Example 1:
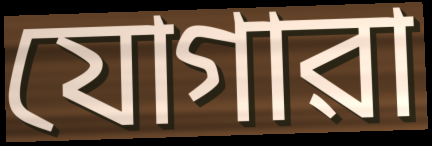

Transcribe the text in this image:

যোগাৱা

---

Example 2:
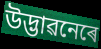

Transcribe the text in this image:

উদ্ভাৱনেৰে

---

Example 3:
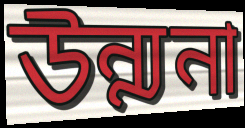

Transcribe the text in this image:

উন্মনা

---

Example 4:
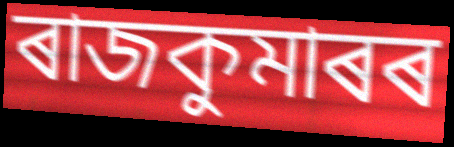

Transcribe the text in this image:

ৰাজকুমাৰৰ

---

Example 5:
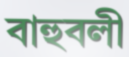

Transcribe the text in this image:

বাহুবলী